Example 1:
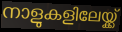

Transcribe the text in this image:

നാളുകളിലേയ്ക്ക്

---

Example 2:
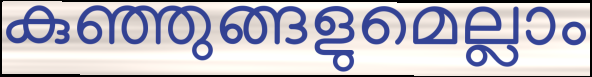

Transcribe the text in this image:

കുഞ്ഞുങ്ങളുമെല്ലാം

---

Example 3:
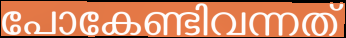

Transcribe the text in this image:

പോകേണ്ടിവന്നത്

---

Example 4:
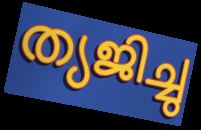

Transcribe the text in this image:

ത്യജിച്ചു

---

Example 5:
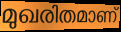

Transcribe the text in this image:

മുഖരിതമാണ്